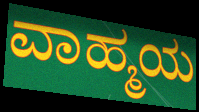
ವಾಹ್ಮಯ